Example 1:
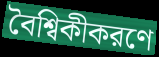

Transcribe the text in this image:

বৈশ্বিকীকরণে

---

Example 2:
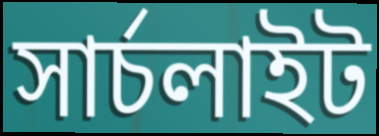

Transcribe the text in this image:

সার্চলাইট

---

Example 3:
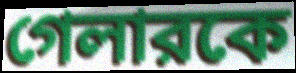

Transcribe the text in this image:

গেলারকে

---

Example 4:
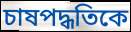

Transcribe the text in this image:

চাষপদ্ধতিকে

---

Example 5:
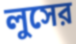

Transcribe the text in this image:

লুসের